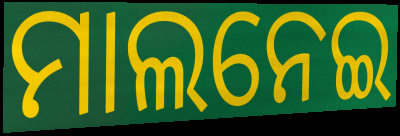
ମାଲନେଇ